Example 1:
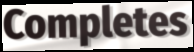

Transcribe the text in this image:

Completes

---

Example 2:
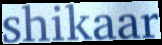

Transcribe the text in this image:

shikaar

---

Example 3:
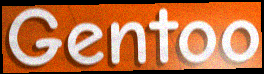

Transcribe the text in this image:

Gentoo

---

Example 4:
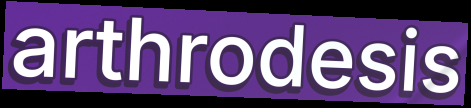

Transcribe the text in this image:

arthrodesis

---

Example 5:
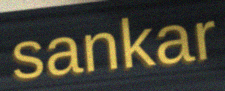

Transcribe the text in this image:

sankar